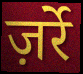
ज़र्रे